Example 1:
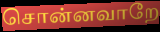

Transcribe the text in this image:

சொன்னவாறே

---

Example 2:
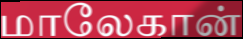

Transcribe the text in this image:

மாலேகான்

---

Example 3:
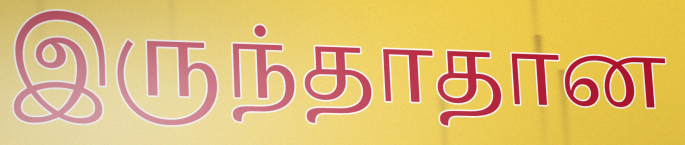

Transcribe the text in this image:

இருந்தாதான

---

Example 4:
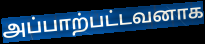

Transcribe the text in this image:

அப்பாற்பட்டவனாக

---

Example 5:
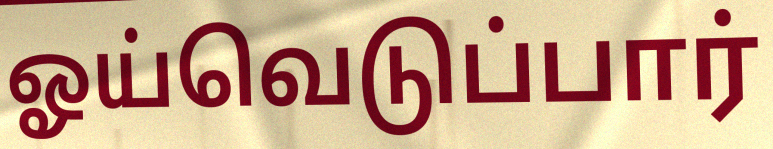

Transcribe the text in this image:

ஓய்வெடுப்பார்